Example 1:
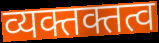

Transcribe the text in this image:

व्यक्तक्तत्व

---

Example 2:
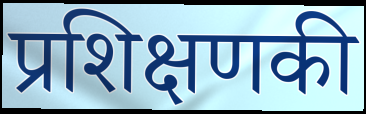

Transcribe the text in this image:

प्रशिक्षणकी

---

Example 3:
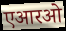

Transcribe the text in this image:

एआरओ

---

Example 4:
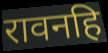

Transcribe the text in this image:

रावनहि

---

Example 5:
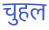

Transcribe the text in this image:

चुहल